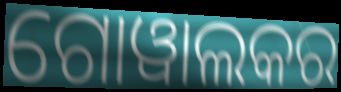
ଗୋୱାଲକର